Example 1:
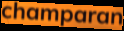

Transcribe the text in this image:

champaran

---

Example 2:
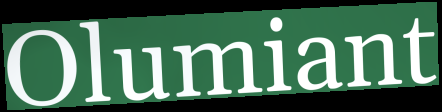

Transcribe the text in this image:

Olumiant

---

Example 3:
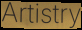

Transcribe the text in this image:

Artistry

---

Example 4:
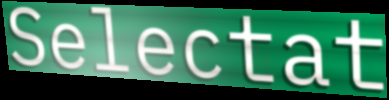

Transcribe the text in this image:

Selectat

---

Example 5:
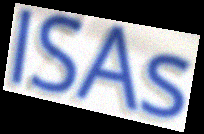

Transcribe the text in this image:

ISAs